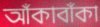
আঁকাবাঁকা